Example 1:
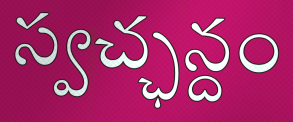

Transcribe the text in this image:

స్వచ్ఛన్దం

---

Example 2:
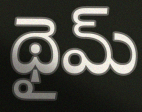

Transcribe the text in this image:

థైమ్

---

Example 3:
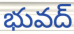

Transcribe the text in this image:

భువద్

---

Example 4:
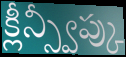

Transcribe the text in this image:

క్లీన్స్వీప్కు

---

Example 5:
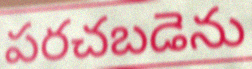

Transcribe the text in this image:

పరచబడెను